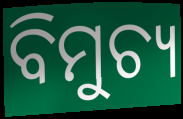
ବିମୁଚ୍ୟ